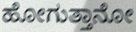
ಹೋಗುತ್ತಾನೋ